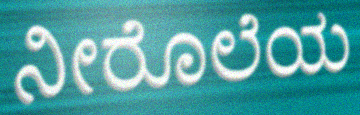
ನೀರೊಲೆಯ